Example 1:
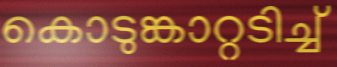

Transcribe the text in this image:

കൊടുങ്കാറ്റടിച്ച്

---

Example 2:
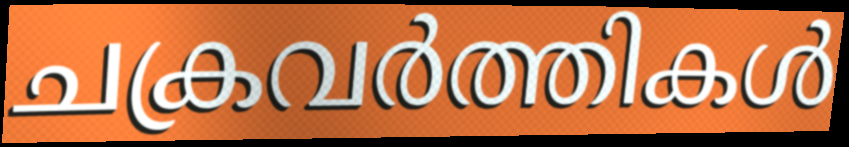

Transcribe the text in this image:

ചക്രവർത്തികൾ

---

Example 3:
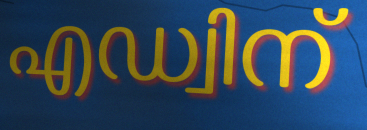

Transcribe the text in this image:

എഡ്വിന്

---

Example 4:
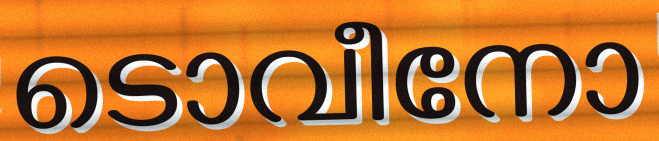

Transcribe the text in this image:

ടൊവീനോ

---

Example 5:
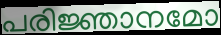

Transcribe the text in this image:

പരിജ്ഞാനമോ